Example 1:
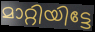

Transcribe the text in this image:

മാറ്റിയിട്ടേ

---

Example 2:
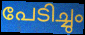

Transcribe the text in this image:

പേടിച്ചും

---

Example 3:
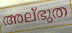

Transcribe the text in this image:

അല്ഭുത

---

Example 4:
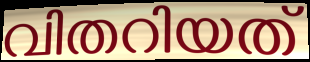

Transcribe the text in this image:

വിതറിയത്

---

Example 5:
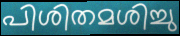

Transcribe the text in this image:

പിശിതമശിച്ചു